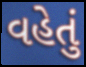
વહેતું